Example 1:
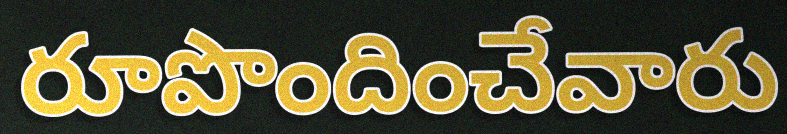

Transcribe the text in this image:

రూపొందించేవారు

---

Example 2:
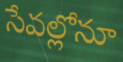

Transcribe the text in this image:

సేవల్లోనూ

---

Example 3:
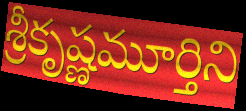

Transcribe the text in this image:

శ్రీకృష్ణమూర్తిని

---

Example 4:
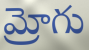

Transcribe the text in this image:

మ్రోగు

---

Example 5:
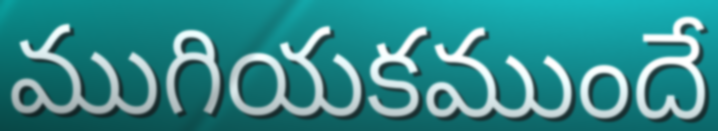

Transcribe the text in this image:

ముగియకముందే